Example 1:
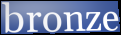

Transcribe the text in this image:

bronze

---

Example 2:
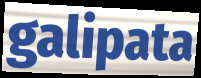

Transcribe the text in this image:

galipata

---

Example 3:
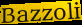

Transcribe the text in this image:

Bazzoli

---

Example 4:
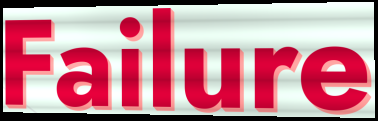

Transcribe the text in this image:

Failure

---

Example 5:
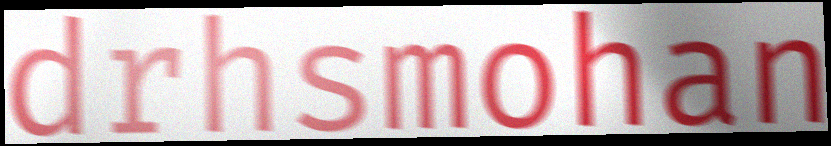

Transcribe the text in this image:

drhsmohan